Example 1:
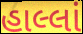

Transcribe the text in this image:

હાલ્લાં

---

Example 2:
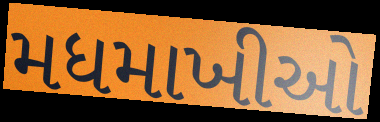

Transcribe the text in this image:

મધમાખીઓ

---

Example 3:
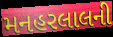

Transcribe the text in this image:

મનહરલાલની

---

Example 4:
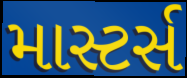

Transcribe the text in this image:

માસ્ટર્સ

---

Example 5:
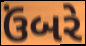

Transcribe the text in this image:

ઉંબરે